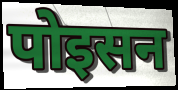
पोइसन